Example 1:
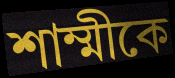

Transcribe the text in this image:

শাম্মীকে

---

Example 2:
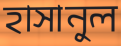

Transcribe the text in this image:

হাসানুল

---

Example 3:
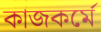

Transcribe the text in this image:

কাজকর্মে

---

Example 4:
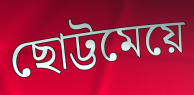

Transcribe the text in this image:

ছোট্টমেয়ে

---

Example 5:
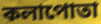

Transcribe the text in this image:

কলাপোতা